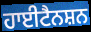
ਹਾਈਟੈਨਸ਼ਨ